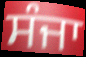
ਸੰਜਾ